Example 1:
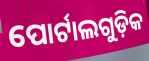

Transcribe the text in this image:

ପୋର୍ଟାଲଗୁଡ଼ିକ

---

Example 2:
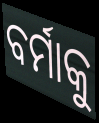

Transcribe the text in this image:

ବର୍ମାକୁ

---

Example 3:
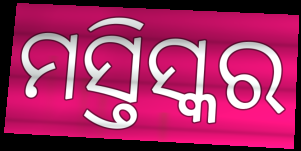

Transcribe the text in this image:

ମସ୍ତିସ୍କର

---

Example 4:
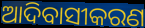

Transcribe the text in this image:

ଆଦିବାସୀକରଣ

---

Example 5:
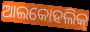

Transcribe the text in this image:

ଆଲକୋହଲିକ୍